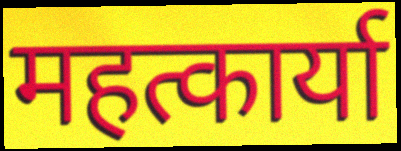
महत्कार्या